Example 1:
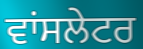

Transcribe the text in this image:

ਵਾਂਸਲੇਟਰ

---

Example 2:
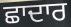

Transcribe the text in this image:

ਛਾਦਾਰ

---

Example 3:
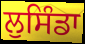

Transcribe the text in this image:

ਲੁਸਿੰਡਾ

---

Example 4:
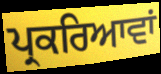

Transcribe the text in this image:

ਪ੍ਰਕਰਿਆਵਾਂ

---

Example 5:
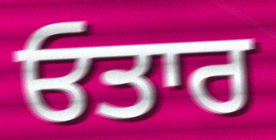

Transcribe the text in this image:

ਓਤਾਰ